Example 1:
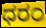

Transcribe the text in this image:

ಧರಂ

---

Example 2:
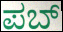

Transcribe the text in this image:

ಪಬ್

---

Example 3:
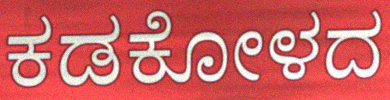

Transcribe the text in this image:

ಕಡಕೋಳದ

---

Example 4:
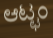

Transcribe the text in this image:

ಆಟ್ಟಂ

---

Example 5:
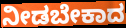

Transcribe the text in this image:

ನೀಡಬೇಕಾದ